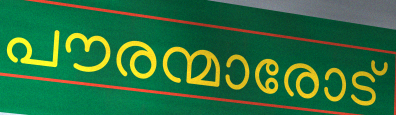
പൗരന്മാരോട്